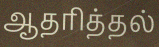
ஆதரித்தல்